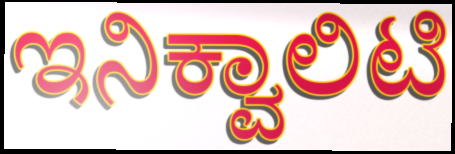
ಇನಿಕ್ವಾಲಿಟಿ